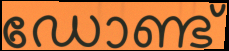
ഡോണ്ട്